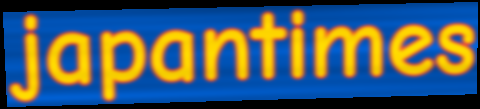
japantimes